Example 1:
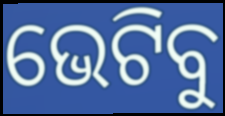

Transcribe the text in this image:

ଭେଟିବୁ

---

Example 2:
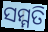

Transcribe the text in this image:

ସମ୍ମତି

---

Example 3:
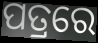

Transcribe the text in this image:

ପତ୍ରରେ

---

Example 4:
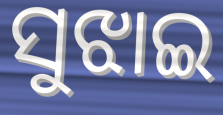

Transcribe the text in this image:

ସୁଝାଇ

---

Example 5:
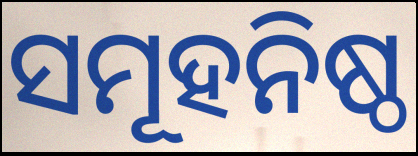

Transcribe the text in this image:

ସମୂହନିଷ୍ଠ